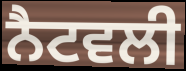
ਨੈਟਵਲੀ